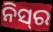
ନିସ୍‌ର